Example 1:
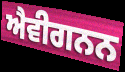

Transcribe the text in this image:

ਐਵੀਗਨਨ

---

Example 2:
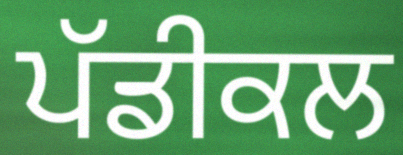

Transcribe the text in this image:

ਪੱਡੀਕਲ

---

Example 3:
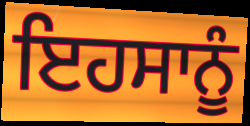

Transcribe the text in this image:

ਇਹਸਾਨੂੰ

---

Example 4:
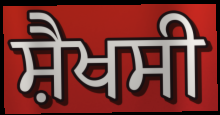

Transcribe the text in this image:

ਸ਼ੈਖਸੀ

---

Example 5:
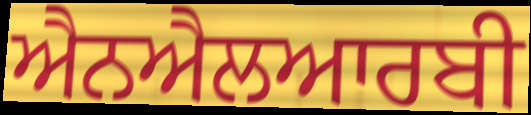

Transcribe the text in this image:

ਐਨਐਲਆਰਬੀ